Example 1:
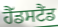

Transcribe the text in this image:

ਹੈੱਡਸਟੈਂਡ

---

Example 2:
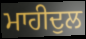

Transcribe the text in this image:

ਮਾਹੀਦੁਲ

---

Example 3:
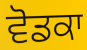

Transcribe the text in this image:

ਵੋਡਕਾ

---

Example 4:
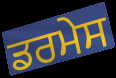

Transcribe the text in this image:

ਡਰਮੇਸ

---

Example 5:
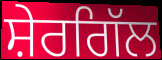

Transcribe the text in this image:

ਸ਼ੇਰਗਿੱਲ